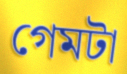
গেমটা